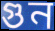
গুন